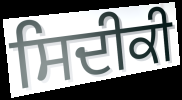
ਸਿਦੀਕੀ